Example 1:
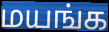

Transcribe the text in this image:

மயங்க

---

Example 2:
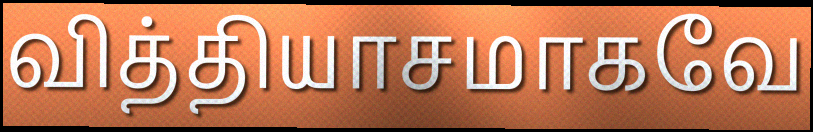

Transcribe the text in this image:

வித்தியாசமாகவே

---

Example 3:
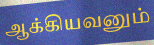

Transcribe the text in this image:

ஆக்கியவனும்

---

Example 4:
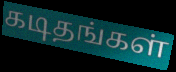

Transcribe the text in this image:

கடிதங்கள்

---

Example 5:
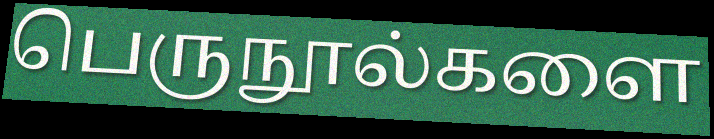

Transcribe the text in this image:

பெருநூல்களை